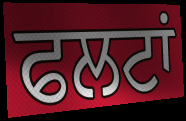
ਫਲਟਾਂ